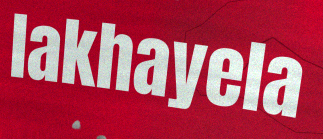
lakhayela